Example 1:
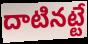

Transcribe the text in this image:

దాటినట్టే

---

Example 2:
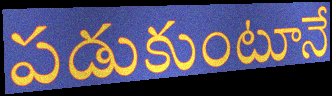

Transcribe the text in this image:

పడుకుంటూనే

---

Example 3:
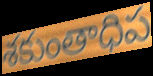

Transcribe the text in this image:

శకుంతాధిప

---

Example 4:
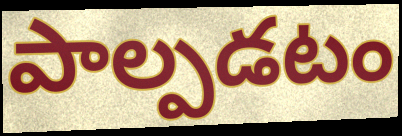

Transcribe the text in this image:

పాల్పడటం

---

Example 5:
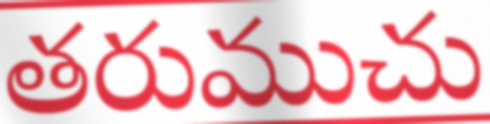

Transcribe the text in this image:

తరుముచు